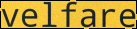
velfare